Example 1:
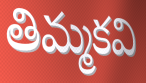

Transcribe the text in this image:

తిమ్మకవి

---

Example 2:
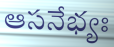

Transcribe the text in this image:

ఆసనేభ్యః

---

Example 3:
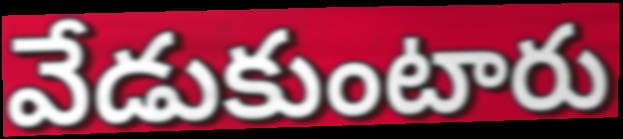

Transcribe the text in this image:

వేడుకుంటారు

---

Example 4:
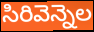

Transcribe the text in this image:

సిరివెన్నెల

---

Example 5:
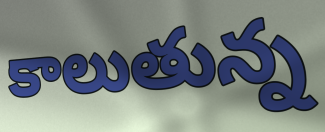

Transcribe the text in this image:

కాలుతున్న